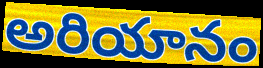
అరియానం